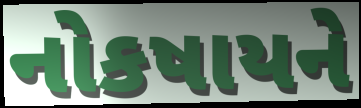
નોકષાયને